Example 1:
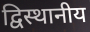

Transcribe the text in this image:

द्विस्थानीय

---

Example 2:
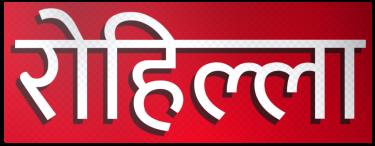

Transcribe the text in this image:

रोहिल्ला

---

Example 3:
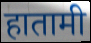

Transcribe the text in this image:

हातामी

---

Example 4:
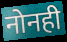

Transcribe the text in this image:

नोनही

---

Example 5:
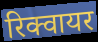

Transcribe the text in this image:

रिक्वायर